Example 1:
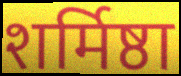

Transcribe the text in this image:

शर्मिष्ठा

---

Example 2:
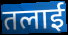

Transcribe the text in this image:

तलाई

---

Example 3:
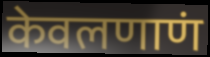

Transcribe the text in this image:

केवलणाणं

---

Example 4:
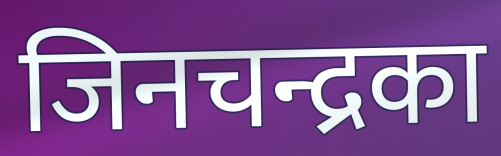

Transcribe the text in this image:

जिनचन्द्रका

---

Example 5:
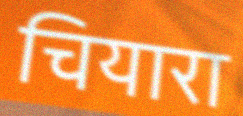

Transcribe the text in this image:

चियारा